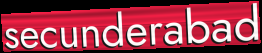
secunderabad